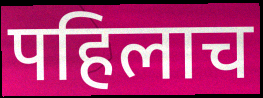
पहिलाच